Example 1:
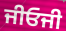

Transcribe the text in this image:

ਜੀਓਜੀ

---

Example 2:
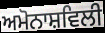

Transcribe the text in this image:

ਅਮੋਨਾਸ਼ਵਿਲੀ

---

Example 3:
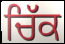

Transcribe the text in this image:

ਚਿੱਕ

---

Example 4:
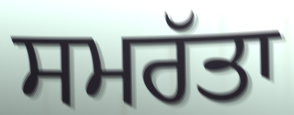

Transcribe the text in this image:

ਸਮਰੱਤਾ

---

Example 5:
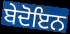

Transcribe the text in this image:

ਬੇਦੋਇਨ